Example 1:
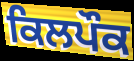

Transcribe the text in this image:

ਕਿਲਪੌਕ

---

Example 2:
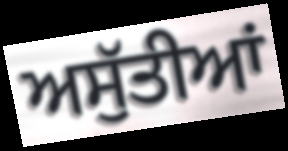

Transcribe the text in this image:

ਅਸੁੱਤੀਆਂ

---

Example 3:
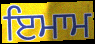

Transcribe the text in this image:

ਇਮਾਮ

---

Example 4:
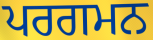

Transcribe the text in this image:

ਪਰਗਮਨ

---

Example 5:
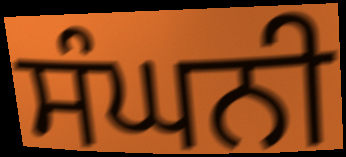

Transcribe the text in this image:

ਸੰਘਨੀ